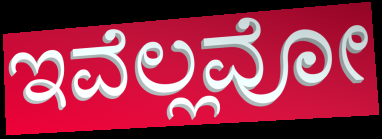
ಇವೆಲ್ಲವೋ